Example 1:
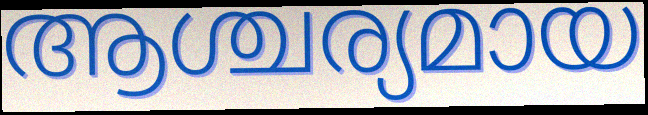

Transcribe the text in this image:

ആശ്ചര്യമായ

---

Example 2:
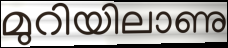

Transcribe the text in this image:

മുറിയിലാണു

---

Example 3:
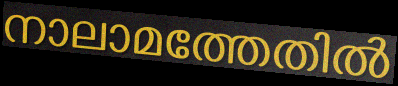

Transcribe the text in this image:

നാലാമത്തേതിൽ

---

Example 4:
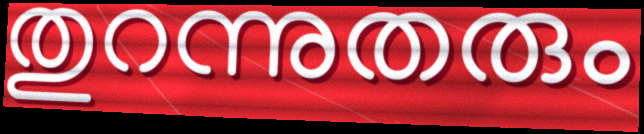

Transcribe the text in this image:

തുറന്നുതരും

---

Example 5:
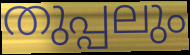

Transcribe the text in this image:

തുപ്പലും